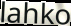
lahko